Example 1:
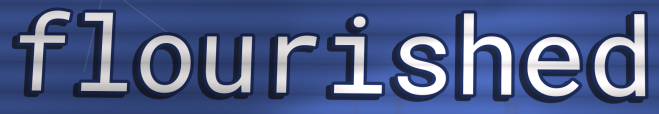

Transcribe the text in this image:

flourished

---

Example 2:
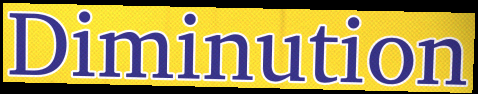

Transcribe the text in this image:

Diminution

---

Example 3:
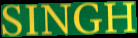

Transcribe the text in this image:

SINGH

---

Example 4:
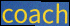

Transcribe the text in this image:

coach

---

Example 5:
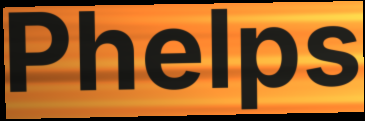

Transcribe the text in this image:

Phelps